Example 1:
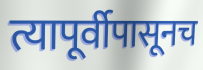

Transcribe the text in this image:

त्यापूर्वीपासूनच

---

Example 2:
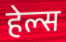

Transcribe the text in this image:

हेल्स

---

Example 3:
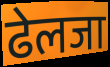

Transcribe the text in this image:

ढेलजा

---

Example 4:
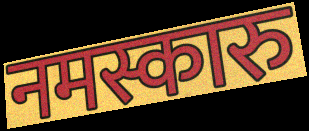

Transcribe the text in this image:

नमस्कारु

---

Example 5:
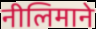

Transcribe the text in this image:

नीलिमाने